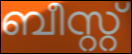
ബീസ്റ്റ്